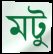
মটু